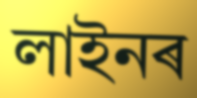
লাইনৰ